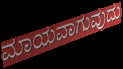
ಮಾಯವಾಗುವುದು